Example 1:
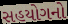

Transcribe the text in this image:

સહયોગનો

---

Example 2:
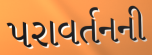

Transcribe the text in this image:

પરાવર્તનની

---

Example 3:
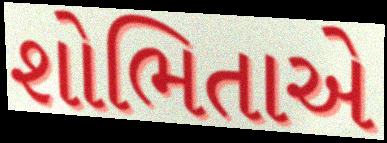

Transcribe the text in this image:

શોભિતાએ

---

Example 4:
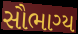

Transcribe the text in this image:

સૌભાગ્ય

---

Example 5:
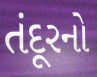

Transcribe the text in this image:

તંદૂરનો